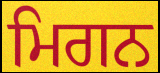
ਮਿਗਨ